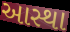
આસ્થા